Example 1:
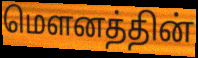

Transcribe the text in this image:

மௌனத்தின்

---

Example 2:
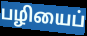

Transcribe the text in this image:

பழியைப்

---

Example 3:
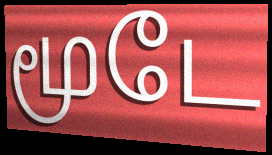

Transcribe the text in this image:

மூடே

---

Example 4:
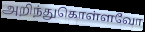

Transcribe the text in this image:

அறிந்துகொள்ளவோ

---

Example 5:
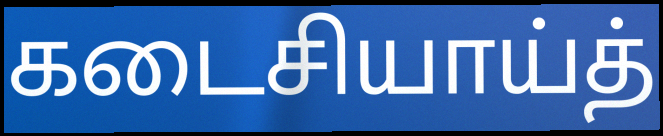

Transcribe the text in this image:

கடைசியாய்த்